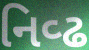
નિવ્ઢ